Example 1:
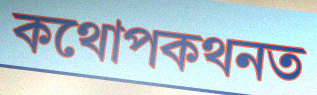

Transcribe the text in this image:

কথোপকথনত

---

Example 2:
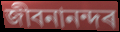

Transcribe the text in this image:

জীবনানন্দৰ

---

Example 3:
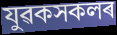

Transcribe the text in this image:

যুৱকসকলৰ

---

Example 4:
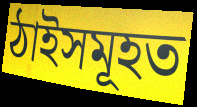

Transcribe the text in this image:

ঠাইসমূহত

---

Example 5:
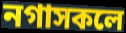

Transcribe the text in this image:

নগাসকলে